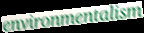
environmentalism